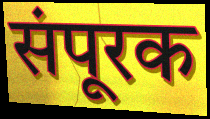
संपूरक